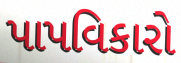
પાપવિકારો